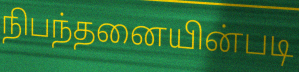
நிபந்தனையின்படி